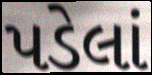
પડેલાં